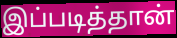
இப்படித்தான்